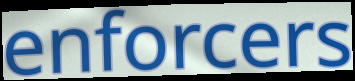
enforcers